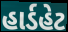
હાર્ડહેટ